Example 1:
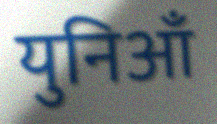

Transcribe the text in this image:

युनिआँ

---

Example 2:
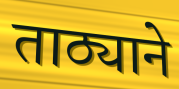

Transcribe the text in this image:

ताठ्याने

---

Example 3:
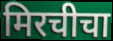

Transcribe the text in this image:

मिरचीचा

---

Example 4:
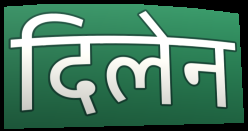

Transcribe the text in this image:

दिलेन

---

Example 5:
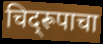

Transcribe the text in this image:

चिद्‌रूपाचा